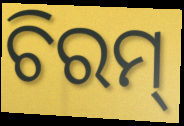
ଚିରମ୍